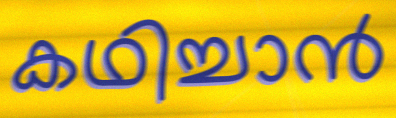
കഥിച്ചാൻ